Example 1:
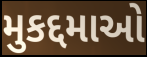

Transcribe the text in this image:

મુકદ્દમાઓ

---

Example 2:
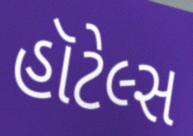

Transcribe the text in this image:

હૉટેલ્સ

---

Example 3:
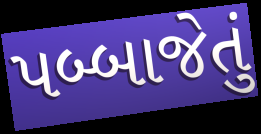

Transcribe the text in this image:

પબ્બાજેતું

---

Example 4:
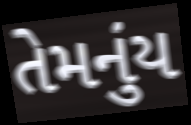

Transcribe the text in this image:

તેમનુંય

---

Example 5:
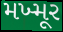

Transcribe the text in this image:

મખ્મૂર